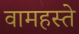
वामहस्ते